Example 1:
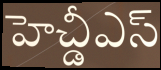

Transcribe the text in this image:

హెచ్డీఎస్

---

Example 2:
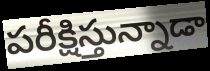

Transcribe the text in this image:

పరీక్షిస్తున్నాడా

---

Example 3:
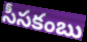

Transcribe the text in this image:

సీసకంబు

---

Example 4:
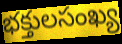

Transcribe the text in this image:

భక్తులసంఖ్య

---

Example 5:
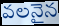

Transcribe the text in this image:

వలనైన